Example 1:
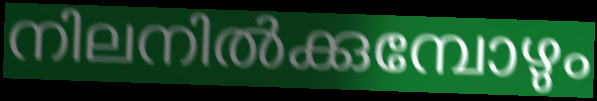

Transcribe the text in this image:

നിലനിൽക്കുമ്പോഴും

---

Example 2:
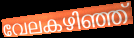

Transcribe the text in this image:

വേലകഴിഞ്ഞ്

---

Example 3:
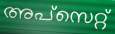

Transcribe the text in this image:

അപ്സെറ്റ്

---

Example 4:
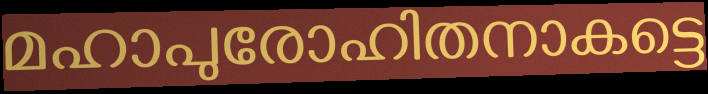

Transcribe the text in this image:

മഹാപുരോഹിതനാകട്ടെ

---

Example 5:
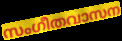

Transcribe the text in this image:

സംഗീതവാസന